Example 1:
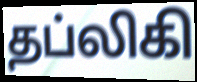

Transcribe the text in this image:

தப்லிகி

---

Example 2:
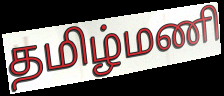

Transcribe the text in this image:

தமிழ்மணி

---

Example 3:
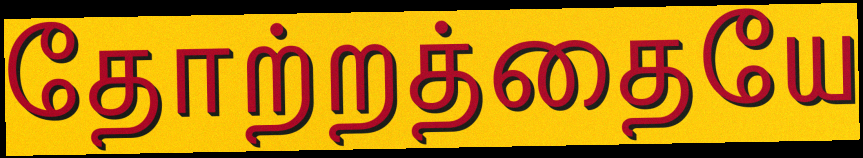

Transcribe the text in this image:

தோற்றத்தையே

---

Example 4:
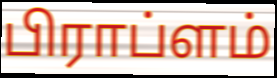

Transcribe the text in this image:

பிராப்ளம்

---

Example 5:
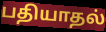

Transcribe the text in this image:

பதியாதல்